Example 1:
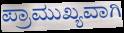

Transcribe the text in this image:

ಪ್ರಾಮುಖ್ಯವಾಗಿ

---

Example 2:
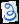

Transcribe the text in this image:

ತಿ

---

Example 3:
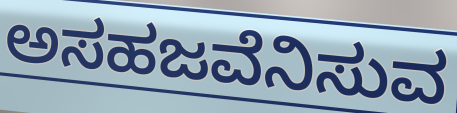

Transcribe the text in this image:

ಅಸಹಜವೆನಿಸುವ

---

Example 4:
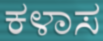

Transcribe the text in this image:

ಕಳಾಸ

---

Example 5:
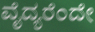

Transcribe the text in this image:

ವೈದ್ಯರೆಂದೇ